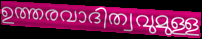
ഉത്തരവാദിത്വവുമുള്ള